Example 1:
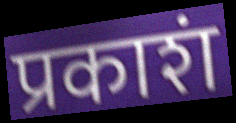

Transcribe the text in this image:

प्रकाशं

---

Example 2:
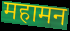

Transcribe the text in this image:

महामन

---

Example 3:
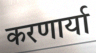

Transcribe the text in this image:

करणार्या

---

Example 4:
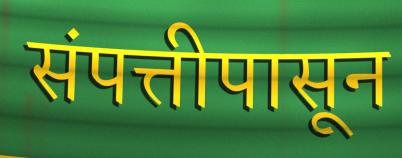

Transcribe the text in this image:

संपत्तीपासून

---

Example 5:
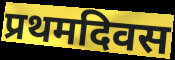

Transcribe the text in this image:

प्रथमदिवस